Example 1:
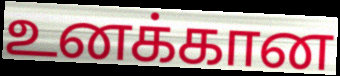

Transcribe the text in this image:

உனக்கான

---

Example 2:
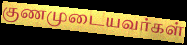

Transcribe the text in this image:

குணமுடையவர்கள்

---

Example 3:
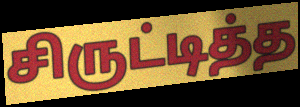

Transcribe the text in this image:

சிருட்டித்த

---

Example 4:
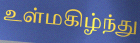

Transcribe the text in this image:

உள்மகிழ்ந்து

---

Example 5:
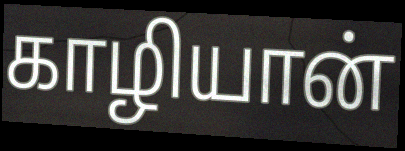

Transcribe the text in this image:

காழியான்